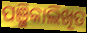
ପଞ୍ଜିକାଲିଖିତ